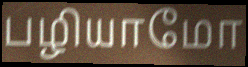
பழியாமோ